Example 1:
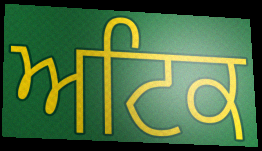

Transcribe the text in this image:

ਅਟਿਕ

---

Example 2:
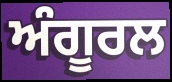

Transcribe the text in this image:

ਅੰਗੂਰਲ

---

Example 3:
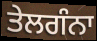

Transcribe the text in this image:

ਤੇਲਗੰਨਾ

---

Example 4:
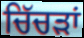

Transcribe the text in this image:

ਚਿੱਚੜਾਂ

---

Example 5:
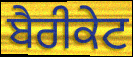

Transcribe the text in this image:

ਬੈਰੀਕੇਟ